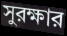
সুরক্ষার